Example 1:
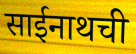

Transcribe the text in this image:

साईनाथची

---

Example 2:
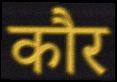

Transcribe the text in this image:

कौर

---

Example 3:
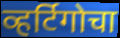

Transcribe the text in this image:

व्हर्टिगोचा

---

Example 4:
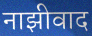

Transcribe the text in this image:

नाझीवाद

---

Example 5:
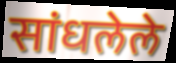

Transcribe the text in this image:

सांधलेले